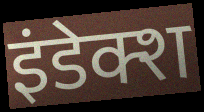
इंडेक्श